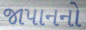
જાપાનનો